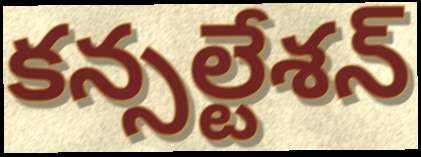
కన్సల్టేశన్